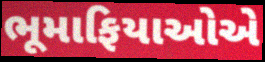
ભૂમાફિયાઓએ